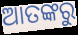
ଆତଙ୍କରୁ